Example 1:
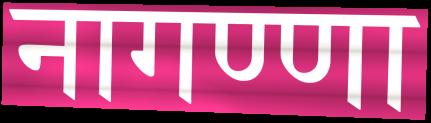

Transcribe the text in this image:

नागण्णा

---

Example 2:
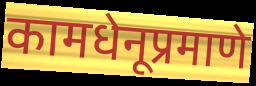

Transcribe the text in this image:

कामधेनूप्रमाणे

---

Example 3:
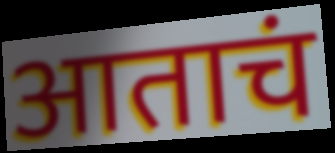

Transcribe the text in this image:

आताचं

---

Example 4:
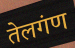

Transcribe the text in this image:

तेलगंण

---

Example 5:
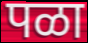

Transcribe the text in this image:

पळा